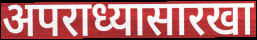
अपराध्यासारखा